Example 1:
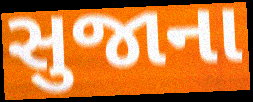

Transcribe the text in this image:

સુજાના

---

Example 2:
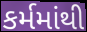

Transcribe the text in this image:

કર્મમાંથી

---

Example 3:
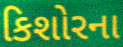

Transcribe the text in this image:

કિશોરના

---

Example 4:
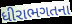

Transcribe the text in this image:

ધીરાભગતના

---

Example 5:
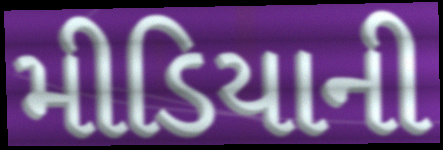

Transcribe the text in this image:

મીડિયાની